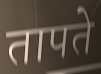
तापते